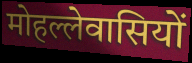
मोहल्लेवासियों